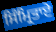
ਸਿੰਮ੍ਰਿਤਾਏ